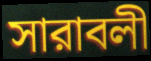
সারাবলী